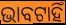
ଭାବଟାହିଁ